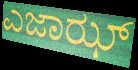
ಎಜಾಝ್